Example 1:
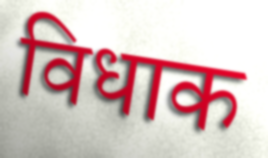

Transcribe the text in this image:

विधाक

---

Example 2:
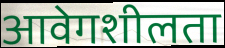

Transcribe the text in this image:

आवेगशीलता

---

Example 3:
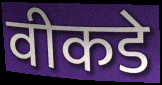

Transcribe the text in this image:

वीकडे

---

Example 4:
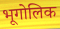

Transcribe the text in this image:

भूगोलिक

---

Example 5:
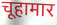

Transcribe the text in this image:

चूहामार